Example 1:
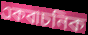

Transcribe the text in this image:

একবাচনিক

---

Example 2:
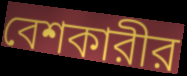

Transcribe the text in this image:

বেশকারীর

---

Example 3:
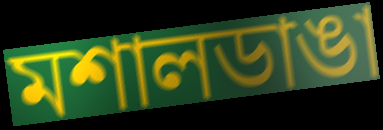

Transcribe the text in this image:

মশালডাঙা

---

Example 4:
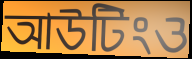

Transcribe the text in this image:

আউটিংও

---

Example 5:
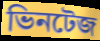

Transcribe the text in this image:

ভিনটেজ